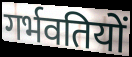
गर्भवतियों